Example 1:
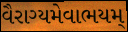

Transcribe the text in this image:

વૈરાગ્યમેવાભયમ્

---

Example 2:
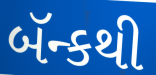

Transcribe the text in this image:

બૅન્કથી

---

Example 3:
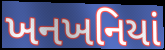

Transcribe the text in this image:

ખનખનિયાં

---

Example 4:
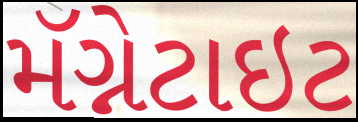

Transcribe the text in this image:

મૅગ્નેટાઇટ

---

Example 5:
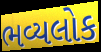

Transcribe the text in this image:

ભવ્યલોક